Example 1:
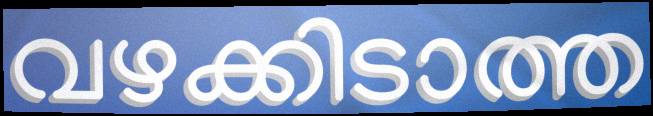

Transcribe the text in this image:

വഴക്കിടാത്ത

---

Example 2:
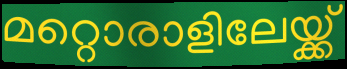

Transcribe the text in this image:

മറ്റൊരാളിലേയ്ക്ക്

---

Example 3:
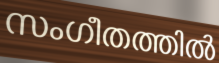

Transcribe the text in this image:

സംഗീതത്തിൽ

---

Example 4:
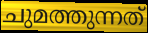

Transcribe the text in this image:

ചുമത്തുന്നത്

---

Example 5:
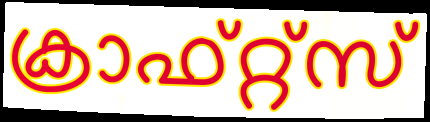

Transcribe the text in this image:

ക്രാഫ്റ്റ്സ്